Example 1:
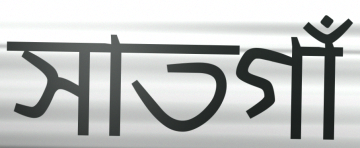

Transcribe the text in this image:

সাতগাঁ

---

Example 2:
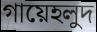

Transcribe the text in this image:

গায়েহলুদ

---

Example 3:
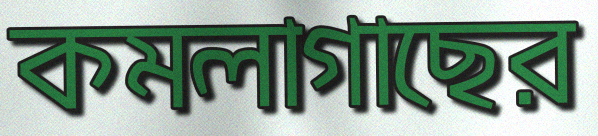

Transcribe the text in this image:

কমলাগাছের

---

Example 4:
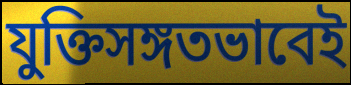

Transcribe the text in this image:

যুক্তিসঙ্গতভাবেই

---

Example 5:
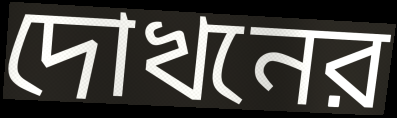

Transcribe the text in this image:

দোখনের